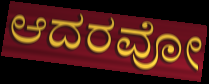
ಆದರವೋ